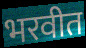
भरवीत